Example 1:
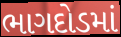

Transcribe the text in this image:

ભાગદોડમાં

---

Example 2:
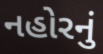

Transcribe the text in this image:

નહોરનું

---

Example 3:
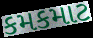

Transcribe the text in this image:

કમકમાટ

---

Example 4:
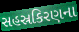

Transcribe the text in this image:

સહસ્રકિરણના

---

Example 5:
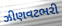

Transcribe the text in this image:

ઝીણવટભરી